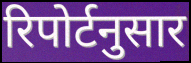
रिपोर्टनुसार